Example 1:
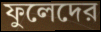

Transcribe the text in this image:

ফুলেদের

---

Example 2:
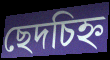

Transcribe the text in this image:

ছেদচিহ্ন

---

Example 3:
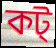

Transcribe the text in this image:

কট্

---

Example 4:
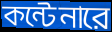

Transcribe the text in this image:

কন্টেনারে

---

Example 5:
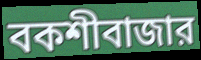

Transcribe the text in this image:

বকশীবাজার